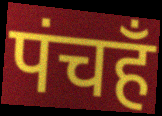
पंचहँ